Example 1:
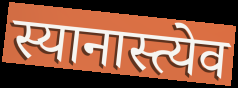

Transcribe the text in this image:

स्यानास्त्येव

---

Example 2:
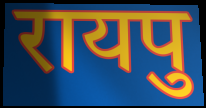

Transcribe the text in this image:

रायपु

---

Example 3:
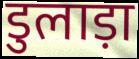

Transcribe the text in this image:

डुलाड़ा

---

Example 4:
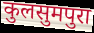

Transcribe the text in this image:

कुलसुमपुरा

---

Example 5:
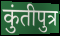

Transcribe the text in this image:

कुंतीपुत्र